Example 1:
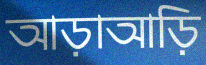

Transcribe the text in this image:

আড়াআড়ি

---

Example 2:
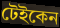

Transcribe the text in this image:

টেইকেন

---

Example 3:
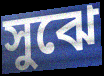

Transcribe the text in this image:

সুঝে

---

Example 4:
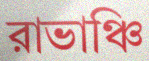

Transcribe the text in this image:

রাভাঞ্চি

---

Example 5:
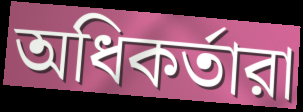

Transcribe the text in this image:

অধিকর্তারা